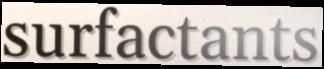
surfactants